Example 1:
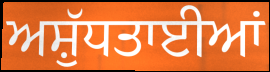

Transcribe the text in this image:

ਅਸ਼ੁੱਧਤਾਈਆਂ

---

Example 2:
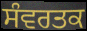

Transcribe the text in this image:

ਸੰਵਰਤਕ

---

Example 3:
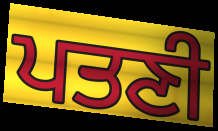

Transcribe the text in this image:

ਪਤਣੀ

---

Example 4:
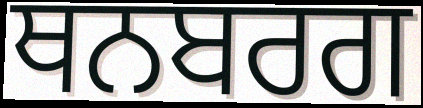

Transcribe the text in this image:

ਥਨਬਰਗ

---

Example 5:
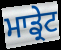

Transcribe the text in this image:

ਮਾਡ੍ਰੇਟ